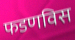
फडणविस